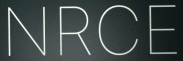
NRCE